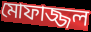
মোফাজ্জল